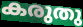
കരുതു